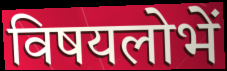
विषयलोभें